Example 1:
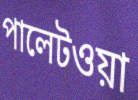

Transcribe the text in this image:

পালেটওয়া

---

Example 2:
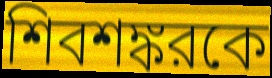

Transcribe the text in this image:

শিবশঙ্করকে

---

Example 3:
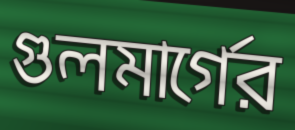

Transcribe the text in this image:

গুলমার্গের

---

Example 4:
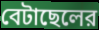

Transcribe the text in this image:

বেটাছেলের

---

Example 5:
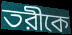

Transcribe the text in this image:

তরীকে